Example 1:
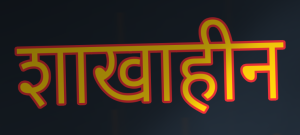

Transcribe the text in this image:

शाखाहीन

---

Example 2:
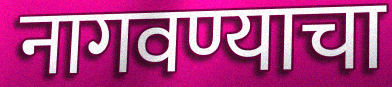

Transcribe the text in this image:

नागवण्याचा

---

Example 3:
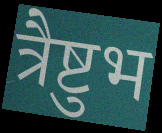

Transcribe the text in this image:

त्रैष्टुभ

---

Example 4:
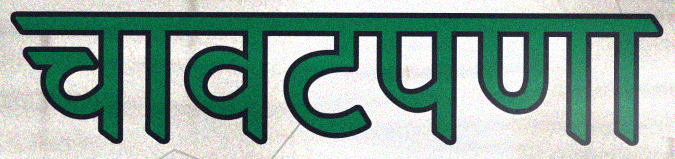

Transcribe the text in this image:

चावटपणा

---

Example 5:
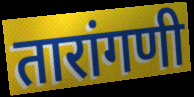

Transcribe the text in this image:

तारांगणी